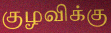
குழவிக்கு